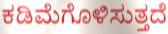
ಕಡಿಮೆಗೊಳಿಸುತ್ತದೆ